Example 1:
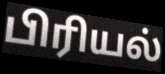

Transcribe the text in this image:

பிரியல்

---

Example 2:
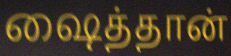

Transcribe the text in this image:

ஷைத்தான்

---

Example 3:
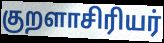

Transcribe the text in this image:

குறளாசிரியர்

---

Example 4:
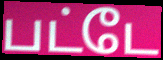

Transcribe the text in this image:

பட்டே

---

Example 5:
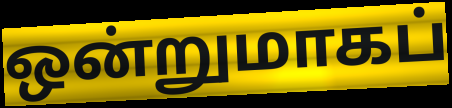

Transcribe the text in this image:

ஒன்றுமாகப்